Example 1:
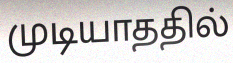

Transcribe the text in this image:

முடியாததில்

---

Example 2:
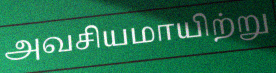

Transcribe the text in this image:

அவசியமாயிற்று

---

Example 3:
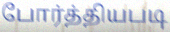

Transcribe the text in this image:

போர்த்தியபடி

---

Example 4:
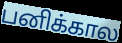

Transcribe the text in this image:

பனிக்கால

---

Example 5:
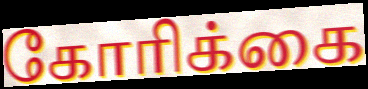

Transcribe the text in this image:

கோரிக்கை